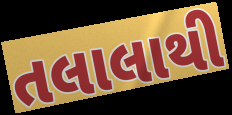
તલાલાથી